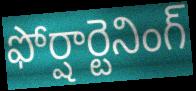
ఫోర్షార్టెనింగ్